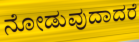
ನೋಡುವುದಾದರೆ